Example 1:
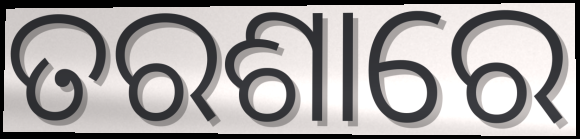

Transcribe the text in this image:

ତରଶାରେ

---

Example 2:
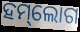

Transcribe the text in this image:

ହମ୍‌ଲୋଗ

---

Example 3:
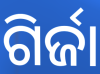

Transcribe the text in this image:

ଗିର୍ଜା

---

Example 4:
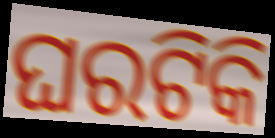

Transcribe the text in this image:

ଘରଟିକି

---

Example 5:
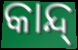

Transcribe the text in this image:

କାନ୍ଦ୍